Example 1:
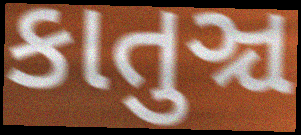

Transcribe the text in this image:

કાતુઞ્ચ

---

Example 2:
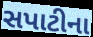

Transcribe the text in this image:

સપાટીના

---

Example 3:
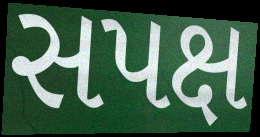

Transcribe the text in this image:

સપક્ષ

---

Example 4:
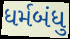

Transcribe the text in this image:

ધર્મબંધુ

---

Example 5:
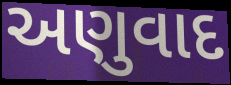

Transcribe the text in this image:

અણુવાદ